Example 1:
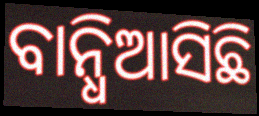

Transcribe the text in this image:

ବାନ୍ଧିଆସିଛି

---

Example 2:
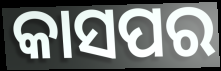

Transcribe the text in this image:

କାସପର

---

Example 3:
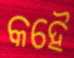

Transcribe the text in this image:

କହୈ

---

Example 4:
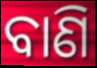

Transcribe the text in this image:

ବାଣି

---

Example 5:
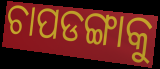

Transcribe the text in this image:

ଚାପଡଙ୍ଗାକୁ